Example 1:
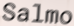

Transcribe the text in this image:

Salmo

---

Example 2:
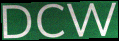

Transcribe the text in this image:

DCW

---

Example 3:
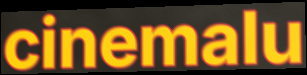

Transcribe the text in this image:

cinemalu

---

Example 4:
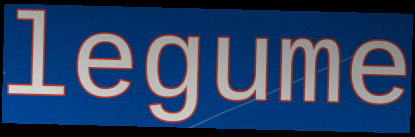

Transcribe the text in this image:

legume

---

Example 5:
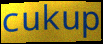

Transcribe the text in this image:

cukup